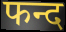
फन्द